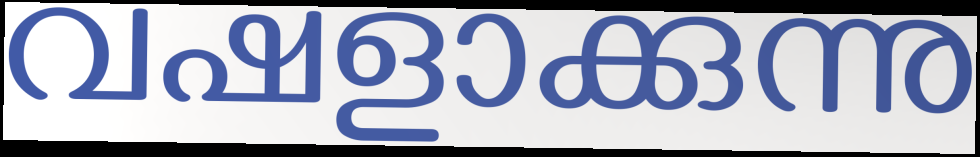
വഷളാക്കുന്നു